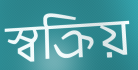
স্বক্রিয়